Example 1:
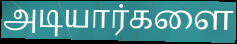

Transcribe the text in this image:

அடியார்களை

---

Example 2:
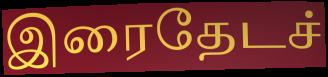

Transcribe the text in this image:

இரைதேடச்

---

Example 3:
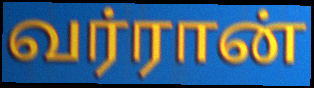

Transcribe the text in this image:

வர்ரான்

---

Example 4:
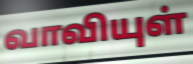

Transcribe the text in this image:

வாவியுள்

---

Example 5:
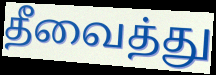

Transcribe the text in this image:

தீவைத்து